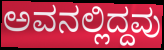
ಅವನಲ್ಲಿದ್ದವು